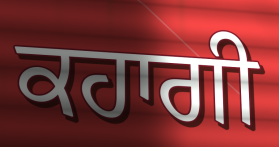
ਕਹਾਗੀ